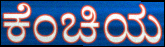
ಕೆಂಚಿಯ